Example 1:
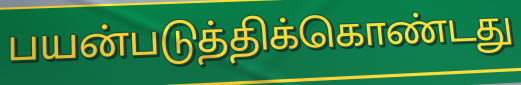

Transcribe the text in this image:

பயன்படுத்திக்கொண்டது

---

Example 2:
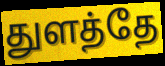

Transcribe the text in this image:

துளத்தே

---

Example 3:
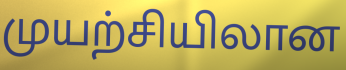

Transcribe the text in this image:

முயற்சியிலான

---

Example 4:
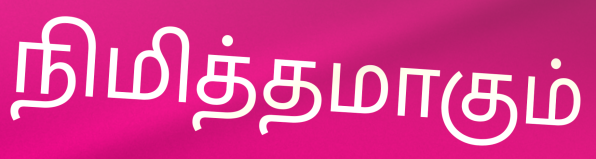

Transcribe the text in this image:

நிமித்தமாகும்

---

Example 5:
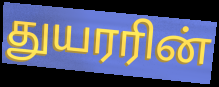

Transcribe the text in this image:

துயரரின்